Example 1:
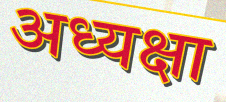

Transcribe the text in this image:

अध्यक्षा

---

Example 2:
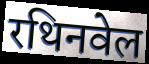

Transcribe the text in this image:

रथिनवेल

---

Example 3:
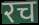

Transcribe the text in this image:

रच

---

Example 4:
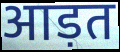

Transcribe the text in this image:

आड़त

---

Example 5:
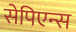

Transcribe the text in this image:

सेपिएन्स